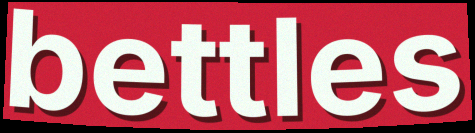
bettles